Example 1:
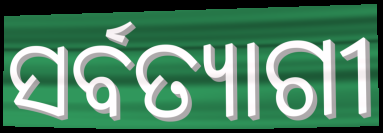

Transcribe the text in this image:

ସର୍ବତ୍ୟାଗୀ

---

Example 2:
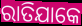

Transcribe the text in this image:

ରାତିଯାକେ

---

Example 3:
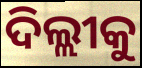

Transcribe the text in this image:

ଦିଲ୍ଲୀକୁ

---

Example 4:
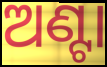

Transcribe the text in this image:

ଅଣ୍ଟା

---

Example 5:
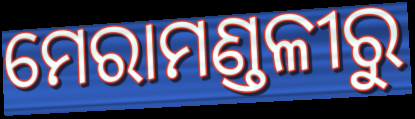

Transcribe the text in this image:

ମେରାମଣ୍ଡଳୀରୁ